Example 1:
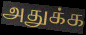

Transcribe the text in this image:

அதுக்க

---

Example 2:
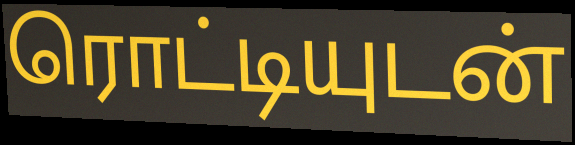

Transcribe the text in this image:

ரொட்டியுடன்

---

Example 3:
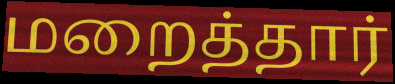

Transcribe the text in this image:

மறைத்தார்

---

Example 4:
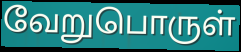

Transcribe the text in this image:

வேறுபொருள்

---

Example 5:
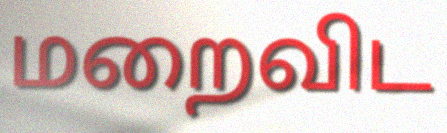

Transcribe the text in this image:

மறைவிட